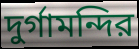
দুর্গামন্দির